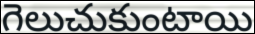
గెలుచుకుంటాయి